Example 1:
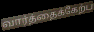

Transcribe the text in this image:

வார்த்தைக்கேற்ப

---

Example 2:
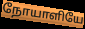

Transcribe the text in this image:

நோயாளியே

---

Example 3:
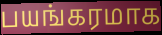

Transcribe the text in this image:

பயங்கரமாக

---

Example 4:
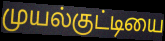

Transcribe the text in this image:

முயல்குட்டியை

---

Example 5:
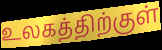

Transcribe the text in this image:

உலகத்திற்குள்